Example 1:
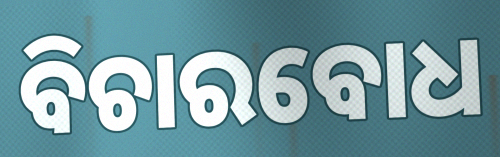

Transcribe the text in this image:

ବିଚାରବୋଧ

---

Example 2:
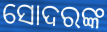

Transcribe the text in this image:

ସୋଦରଙ୍କ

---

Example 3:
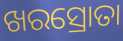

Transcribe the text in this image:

ଖରସ୍ରୋତା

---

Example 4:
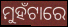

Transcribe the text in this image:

ମୁହଁଟାରେ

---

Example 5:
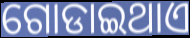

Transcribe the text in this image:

ଗୋଡାଇଥାଏ